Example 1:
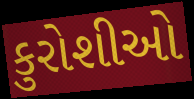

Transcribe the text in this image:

કુરોશીઓ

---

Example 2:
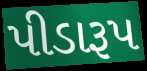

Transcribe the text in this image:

પીડારૂપ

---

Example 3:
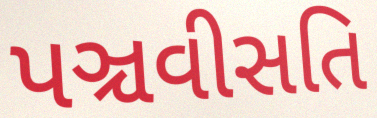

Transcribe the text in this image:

પઞ્ચવીસતિ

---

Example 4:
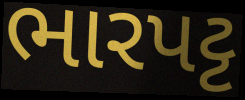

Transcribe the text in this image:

ભારપટ્ટ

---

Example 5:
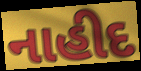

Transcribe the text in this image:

નાહીદ